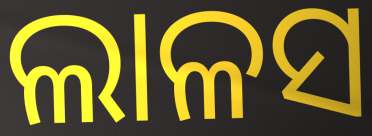
ଲାଳସ